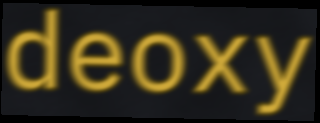
deoxy